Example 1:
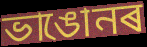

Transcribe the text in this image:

ভাঙোনৰ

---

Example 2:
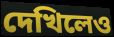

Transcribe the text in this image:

দেখিলেও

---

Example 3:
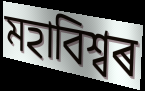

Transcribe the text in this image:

মহাবিশ্বৰ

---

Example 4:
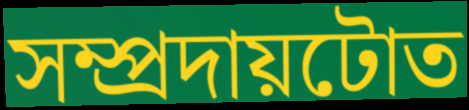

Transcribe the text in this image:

সম্প্ৰদায়টোত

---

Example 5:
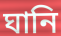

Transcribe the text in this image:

ঘানি